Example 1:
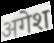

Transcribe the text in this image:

अगेश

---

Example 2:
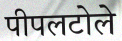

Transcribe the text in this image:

पीपलटोले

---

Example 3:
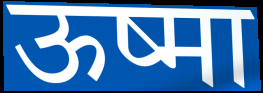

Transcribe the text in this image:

ऊष्‍मा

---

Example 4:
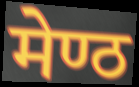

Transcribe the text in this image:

मेण्ठ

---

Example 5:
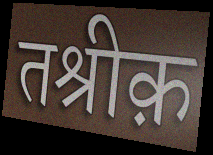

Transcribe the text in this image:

तश्रीक़